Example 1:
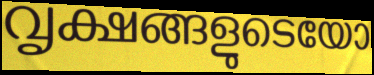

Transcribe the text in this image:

വൃക്ഷങ്ങളുടെയോ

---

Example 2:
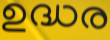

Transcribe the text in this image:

ഉദ്ധര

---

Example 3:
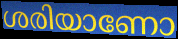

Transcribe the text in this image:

ശരിയാണോ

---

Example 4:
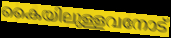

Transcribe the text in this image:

കൈയിലുള്ളവനോട്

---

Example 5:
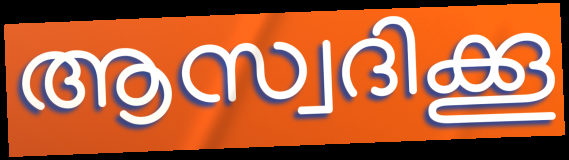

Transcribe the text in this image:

ആസ്വദിക്കൂ